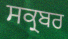
ਸਕ੍ਰਬਰ